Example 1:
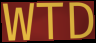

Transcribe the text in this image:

WTD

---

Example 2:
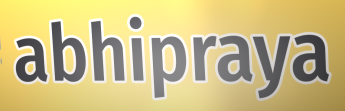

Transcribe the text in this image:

abhipraya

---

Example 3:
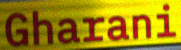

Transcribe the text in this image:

Gharani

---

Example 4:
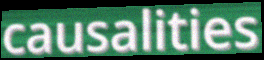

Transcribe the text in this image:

causalities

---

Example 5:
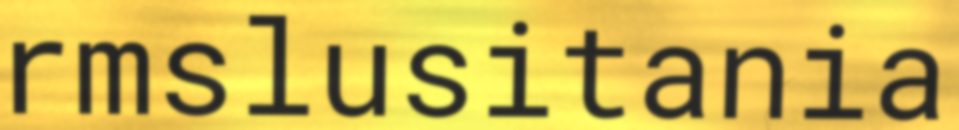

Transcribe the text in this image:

rmslusitania